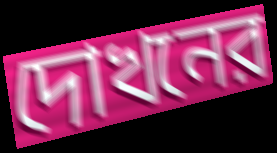
দোখনের